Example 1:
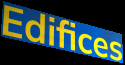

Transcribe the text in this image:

Edifices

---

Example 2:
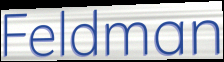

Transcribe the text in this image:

Feldman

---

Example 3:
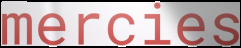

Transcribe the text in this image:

mercies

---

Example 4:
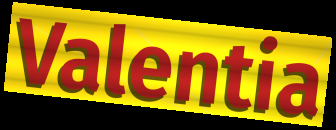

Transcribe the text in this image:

Valentia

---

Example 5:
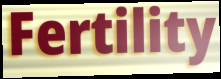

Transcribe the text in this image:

Fertility